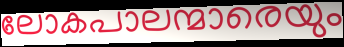
ലോകപാലന്മാരെയും